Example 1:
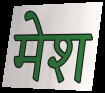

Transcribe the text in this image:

मेश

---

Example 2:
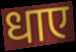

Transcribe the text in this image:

धाए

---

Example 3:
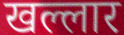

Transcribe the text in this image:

खल्लार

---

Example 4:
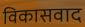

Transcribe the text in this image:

विकासवाद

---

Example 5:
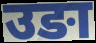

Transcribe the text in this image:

उङा